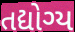
તદ્યોગ્ય